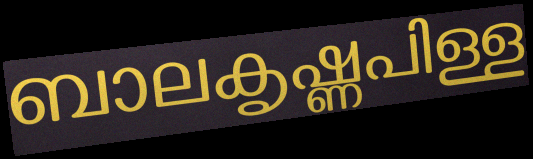
ബാലകൃഷ്ണപിള്ള